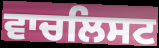
ਵਾਚਲਿਸਟ